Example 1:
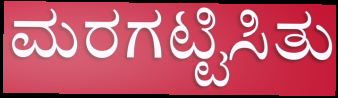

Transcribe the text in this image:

ಮರಗಟ್ಟಿಸಿತು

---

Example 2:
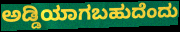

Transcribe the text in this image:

ಅಡ್ಡಿಯಾಗಬಹುದೆಂದು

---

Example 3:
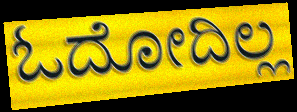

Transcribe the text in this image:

ಓದೋದಿಲ್ಲ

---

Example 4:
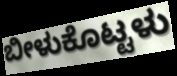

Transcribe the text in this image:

ಬೀಳುಕೊಟ್ಟಳು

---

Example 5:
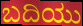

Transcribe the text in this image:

ಬದಿಯು